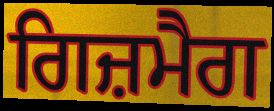
ਗਿਜ਼ਮੈਗ